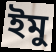
ইমু